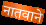
नातवाने